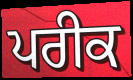
ਪਰੀਕ